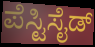
ಪೆಸ್ಟಿಸೈಡ್